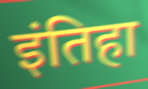
इंतिहा